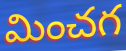
మించగ